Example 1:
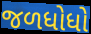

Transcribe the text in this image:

જળધોધો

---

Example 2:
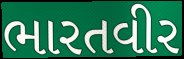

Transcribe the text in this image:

ભારતવીર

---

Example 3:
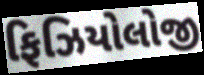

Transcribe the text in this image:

ફિઝિયોલોજી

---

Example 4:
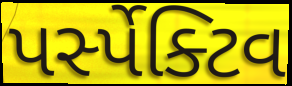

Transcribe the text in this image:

પર્સ્પેક્ટિવ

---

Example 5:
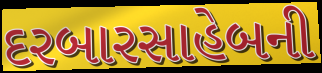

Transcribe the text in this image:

દરબારસાહેબની